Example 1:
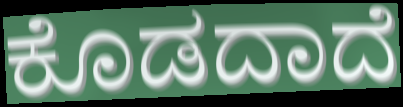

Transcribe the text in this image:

ಕೊಡದಾದೆ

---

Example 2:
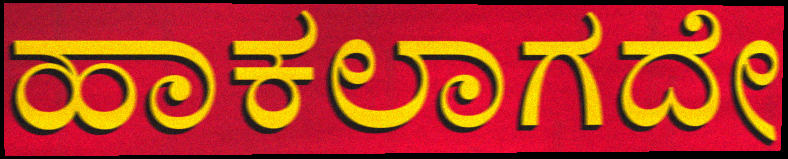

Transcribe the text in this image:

ಹಾಕಲಾಗದೇ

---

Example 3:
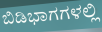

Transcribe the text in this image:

ಬಿಡಿಭಾಗಗಳಲ್ಲಿ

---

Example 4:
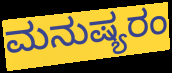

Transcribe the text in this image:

ಮನುಷ್ಯರಂ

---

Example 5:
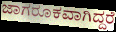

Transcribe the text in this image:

ಜಾಗರೂಕವಾಗಿದ್ದರೆ